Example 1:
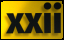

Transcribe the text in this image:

xxii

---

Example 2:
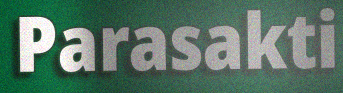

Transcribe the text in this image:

Parasakti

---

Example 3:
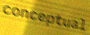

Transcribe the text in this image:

conceptual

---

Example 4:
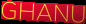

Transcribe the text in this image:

GHANU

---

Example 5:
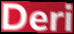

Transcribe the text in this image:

Deri